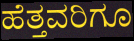
ಹೆತ್ತವರಿಗೂ